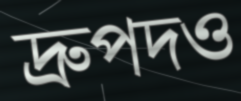
দ্রুপদও